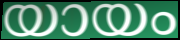
യായം